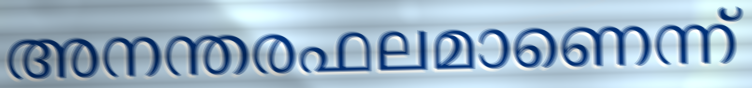
അനന്തരഫലമാണെന്ന്